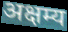
अक्षम्य